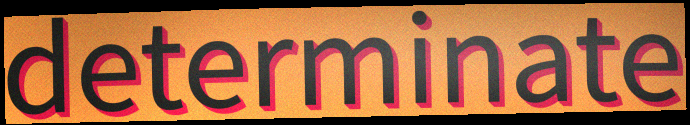
determinate